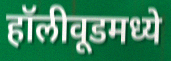
हॉलीवूडमध्ये